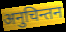
अनुचिन्तन